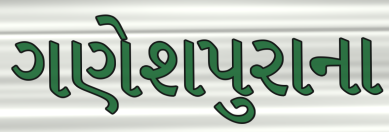
ગણેશપુરાના